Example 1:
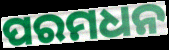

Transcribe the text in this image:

ପରମଧନ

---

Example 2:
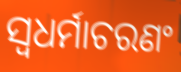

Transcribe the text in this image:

ସ୍ୱଧର୍ମାଚରଣଂ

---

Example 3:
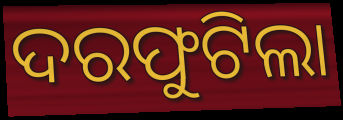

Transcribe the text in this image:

ଦରଫୁଟିଲା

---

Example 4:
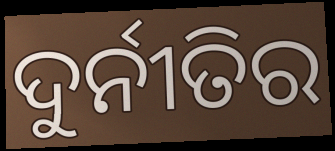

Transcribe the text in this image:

ଦୁର୍ନୀତିର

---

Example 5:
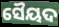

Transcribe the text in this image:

ସୈୟଦ